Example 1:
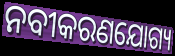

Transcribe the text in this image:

ନବୀକରଣଯୋଗ୍ୟ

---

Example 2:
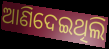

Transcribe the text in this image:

ଆଣିଦେଇଥିଲି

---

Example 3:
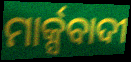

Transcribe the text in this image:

ମାର୍କ୍ସବାଦୀ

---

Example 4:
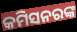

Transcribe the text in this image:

କମିସନରଙ୍କ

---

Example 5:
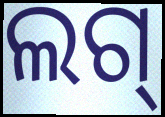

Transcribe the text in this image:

ଲଗ୍